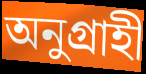
অনুগ্রাহী